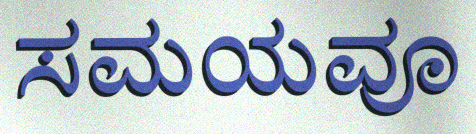
ಸಮಯವೂ